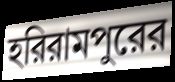
হরিরামপুরের